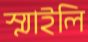
স্মাইলি